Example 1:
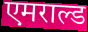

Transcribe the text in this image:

एमराल्ड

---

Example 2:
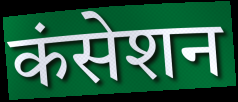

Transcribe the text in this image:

कंसेशन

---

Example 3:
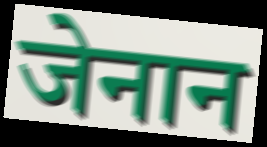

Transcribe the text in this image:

जेनान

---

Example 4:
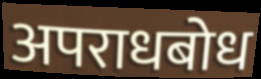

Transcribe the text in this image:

अपराधबोध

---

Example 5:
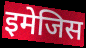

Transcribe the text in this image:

इमेजिस